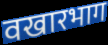
वखारभाग